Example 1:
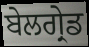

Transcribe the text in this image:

ਬੇਲਗ੍ਰੇਡ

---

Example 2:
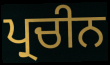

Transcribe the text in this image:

ਪ੍ਰਚੀਨ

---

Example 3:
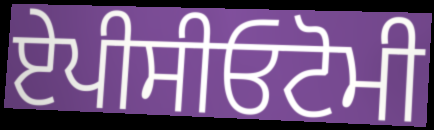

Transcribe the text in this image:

ਏਪੀਸੀਓਟੋਮੀ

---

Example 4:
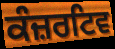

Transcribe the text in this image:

ਕੰਜ਼ਰਟਿਵ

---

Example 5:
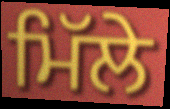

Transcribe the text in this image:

ਮਿੱਲੇ